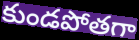
కుండపోతగా